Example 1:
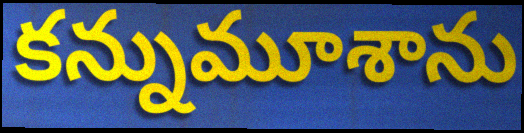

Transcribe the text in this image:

కన్నుమూశాను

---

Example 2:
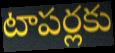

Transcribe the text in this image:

టాపర్లకు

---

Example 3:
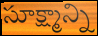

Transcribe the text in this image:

సూక్ష్మాన్ని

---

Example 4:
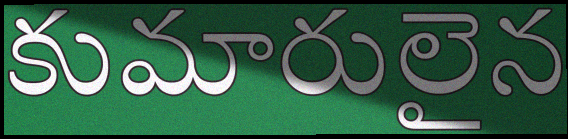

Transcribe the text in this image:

కుమారులైన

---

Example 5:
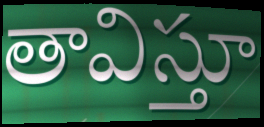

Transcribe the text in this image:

తావిస్తూ